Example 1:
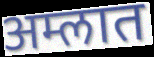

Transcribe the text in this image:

अम्लात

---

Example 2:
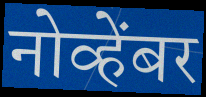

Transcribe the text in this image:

नोव्हेंबर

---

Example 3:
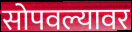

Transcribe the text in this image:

सोपवल्यावर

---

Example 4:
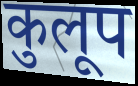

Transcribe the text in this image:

कुलूप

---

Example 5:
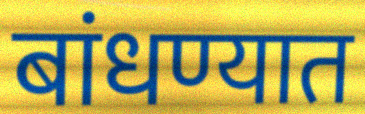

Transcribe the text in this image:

बांधण्‍यात